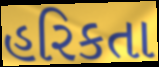
હરિકતા